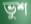
ভুশ